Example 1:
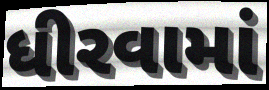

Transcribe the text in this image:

ધીરવામાં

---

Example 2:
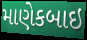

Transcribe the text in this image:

માણેકબાઇ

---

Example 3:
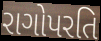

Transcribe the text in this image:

રાગોપરતિ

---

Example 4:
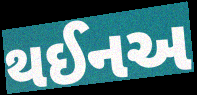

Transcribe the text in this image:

થઈનઅ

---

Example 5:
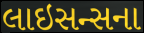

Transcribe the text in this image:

લાઇસન્સના